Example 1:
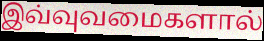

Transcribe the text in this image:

இவ்வுவமைகளால்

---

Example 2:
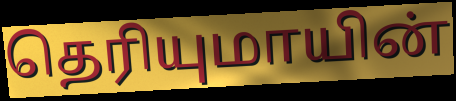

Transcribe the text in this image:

தெரியுமாயின்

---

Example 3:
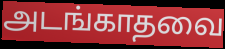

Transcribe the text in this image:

அடங்காதவை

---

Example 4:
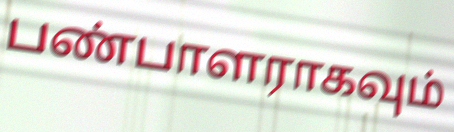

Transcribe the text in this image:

பண்பாளராகவும்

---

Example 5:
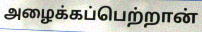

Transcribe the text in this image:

அழைக்கப்பெற்றான்